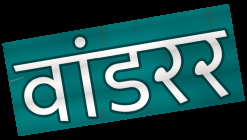
वांडरर